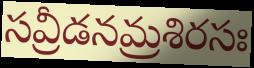
సవ్రీడనమ్రశిరసః